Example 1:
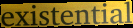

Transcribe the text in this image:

existential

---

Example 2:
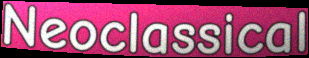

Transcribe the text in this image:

Neoclassical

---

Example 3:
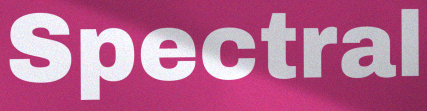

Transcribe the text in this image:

Spectral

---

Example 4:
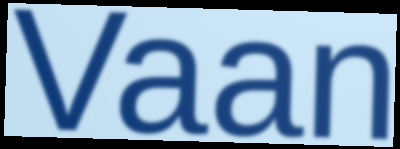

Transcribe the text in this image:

Vaan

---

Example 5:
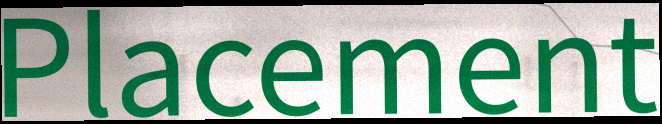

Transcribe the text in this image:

Placement